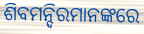
ଶିବମନ୍ଦିରମାନଙ୍କରେ